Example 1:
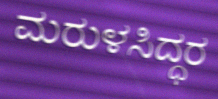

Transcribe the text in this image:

ಮರುಳಸಿದ್ಧರ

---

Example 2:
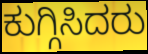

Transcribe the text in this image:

ಕುಗ್ಗಿಸಿದರು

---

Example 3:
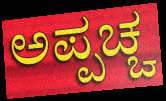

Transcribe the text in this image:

ಅಪ್ಪಚ್ಚ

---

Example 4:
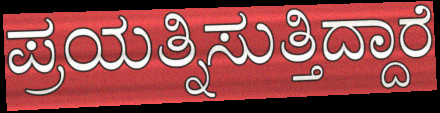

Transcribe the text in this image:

ಪ್ರಯತ್ನಿಸುತ್ತಿದ್ದಾರೆ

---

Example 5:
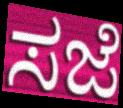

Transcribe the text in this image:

ಸಜೆ